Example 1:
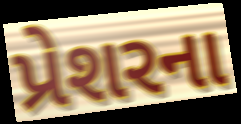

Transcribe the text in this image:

પ્રેશરના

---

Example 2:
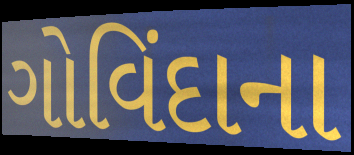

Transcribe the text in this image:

ગોવિંદાના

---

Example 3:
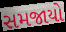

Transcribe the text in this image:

સમજાયો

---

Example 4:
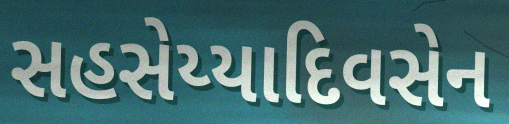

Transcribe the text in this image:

સહસેય્યાદિવસેન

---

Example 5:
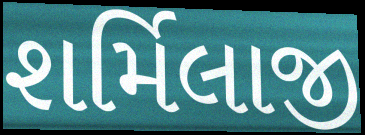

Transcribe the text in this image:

શર્મિલાજી